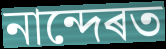
নান্দেৰত